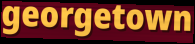
georgetown